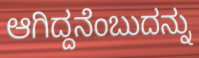
ಆಗಿದ್ದನೆಂಬುದನ್ನು